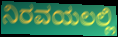
ನಿರವಯಲಲ್ಲಿ